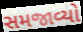
સમજાવ્યો